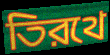
তিরথে